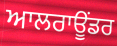
ਆਲਰਾਊਂਡਰ